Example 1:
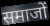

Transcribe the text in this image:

समाजों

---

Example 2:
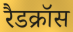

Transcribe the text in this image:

रैडक्रॉस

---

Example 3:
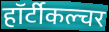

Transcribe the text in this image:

हॉर्टीकल्चर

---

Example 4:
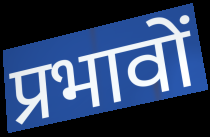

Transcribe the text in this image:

प्रभावों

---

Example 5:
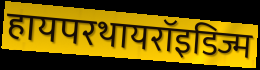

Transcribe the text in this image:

हायपरथायरॉइडिज्म